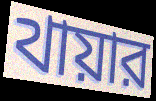
থায়ার